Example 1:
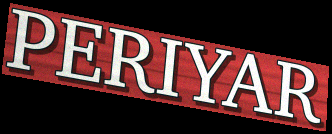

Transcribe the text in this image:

PERIYAR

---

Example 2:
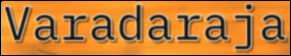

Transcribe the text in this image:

Varadaraja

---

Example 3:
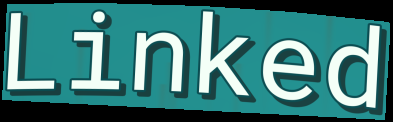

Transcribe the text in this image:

Linked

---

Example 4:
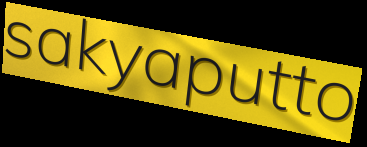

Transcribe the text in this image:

sakyaputto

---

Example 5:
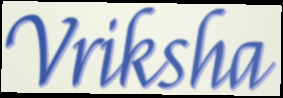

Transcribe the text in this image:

Vriksha